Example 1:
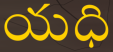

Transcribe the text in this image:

యధి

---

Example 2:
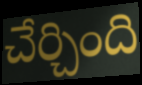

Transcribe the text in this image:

చేర్చింది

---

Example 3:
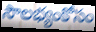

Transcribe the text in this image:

సౌలభ్యంకోసం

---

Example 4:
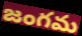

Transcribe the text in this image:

జంగమ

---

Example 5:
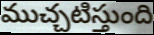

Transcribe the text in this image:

ముచ్చటిస్తుంది